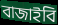
বাজাইবি